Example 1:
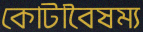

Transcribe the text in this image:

কোটাবৈষম্য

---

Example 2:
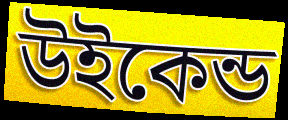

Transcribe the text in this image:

উইকেন্ড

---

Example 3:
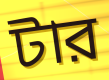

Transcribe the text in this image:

টার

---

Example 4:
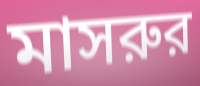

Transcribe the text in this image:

মাসরুর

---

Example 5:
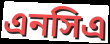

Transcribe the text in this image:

এনসিএ